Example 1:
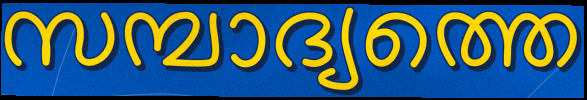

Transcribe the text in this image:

സമ്പാദ്യത്തെ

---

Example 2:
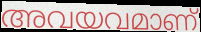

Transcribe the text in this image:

അവയവമാണ്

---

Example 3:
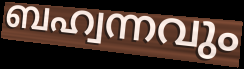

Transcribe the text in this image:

ബഹ്വന്നവും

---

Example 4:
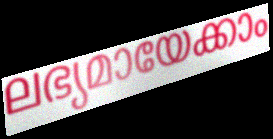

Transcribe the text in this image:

ലഭ്യമായേക്കാം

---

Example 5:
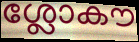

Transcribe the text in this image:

ശ്ലോകൗ